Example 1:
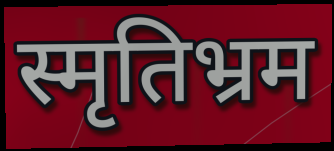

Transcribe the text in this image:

स्मृतिभ्रम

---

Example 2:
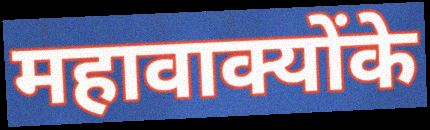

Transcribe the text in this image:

महावाक्योंके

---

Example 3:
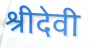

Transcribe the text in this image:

श्रीदेवी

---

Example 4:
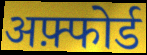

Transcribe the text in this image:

अफ़्फोर्ड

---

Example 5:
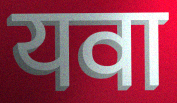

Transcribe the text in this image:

यवा